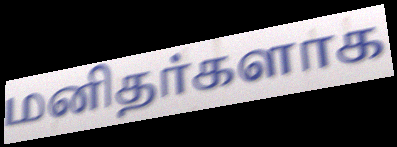
மனிதர்களாக